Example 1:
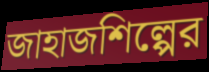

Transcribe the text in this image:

জাহাজশিল্পের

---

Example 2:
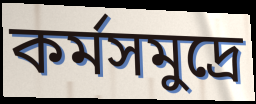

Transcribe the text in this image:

কর্মসমুদ্রে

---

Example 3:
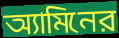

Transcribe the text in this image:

অ্যামিনের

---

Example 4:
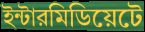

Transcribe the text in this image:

ইন্টারমিডিয়েটে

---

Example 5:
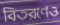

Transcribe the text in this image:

বিতরণেও